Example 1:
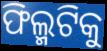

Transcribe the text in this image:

ଫିଲ୍ମଟିକୁ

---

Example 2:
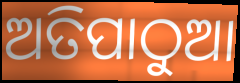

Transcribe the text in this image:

ଅତିପାଠୁଆ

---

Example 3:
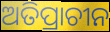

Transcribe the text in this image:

ଅତିପ୍ରାଚୀନ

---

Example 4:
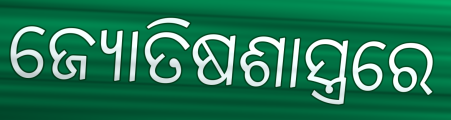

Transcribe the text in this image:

ଜ୍ୟୋତିଷଶାସ୍ତ୍ରରେ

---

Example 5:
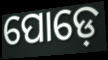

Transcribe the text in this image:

ପୋଡ଼େ